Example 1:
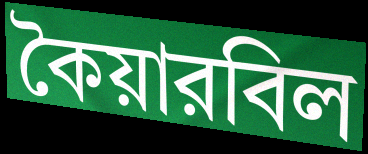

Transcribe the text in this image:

কৈয়ারবিল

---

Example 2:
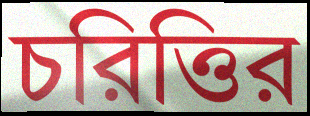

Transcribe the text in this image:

চরিত্তির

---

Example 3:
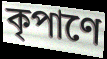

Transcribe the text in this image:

কৃপাণে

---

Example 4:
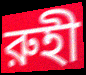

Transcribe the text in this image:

রুহী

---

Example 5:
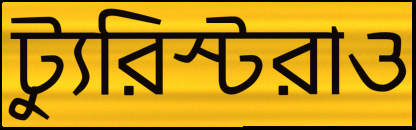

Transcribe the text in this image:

ট্যুরিস্টরাও